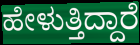
ಹೇಳುತ್ತಿದ್ದಾರೆ